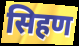
सिहण